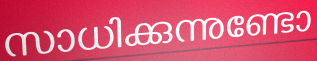
സാധിക്കുന്നുണ്ടോ